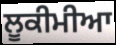
ਲੂਕੀਮੀਆ